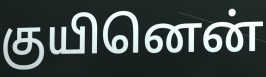
குயினென்